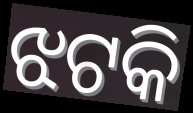
ଝଟକି